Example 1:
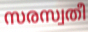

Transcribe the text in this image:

സരസ്വതീ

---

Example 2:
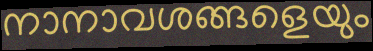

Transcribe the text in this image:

നാനാവശങ്ങളെയും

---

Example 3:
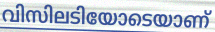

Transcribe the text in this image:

വിസിലടിയോടെയാണ്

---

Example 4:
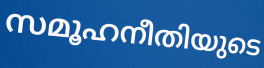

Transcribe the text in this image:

സമൂഹനീതിയുടെ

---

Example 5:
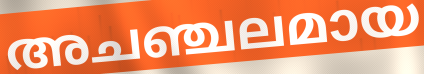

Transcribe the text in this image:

അചഞ്ചലമായ